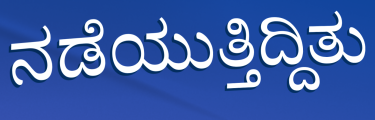
ನಡೆಯುತ್ತಿದ್ದಿತು